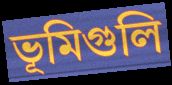
ভূমিগুলি